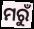
ମରୁଁ